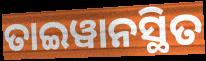
ତାଇୱାନସ୍ଥିତ